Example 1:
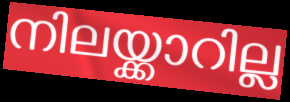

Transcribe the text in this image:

നിലയ്ക്കാറില്ല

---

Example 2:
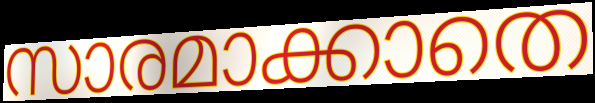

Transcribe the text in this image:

സാരമാക്കാതെ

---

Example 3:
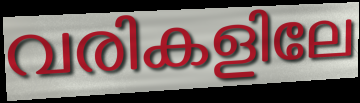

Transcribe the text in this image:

വരികളിലേ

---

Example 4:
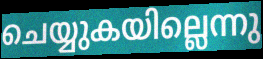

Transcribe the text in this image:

ചെയ്യുകയില്ലെന്നു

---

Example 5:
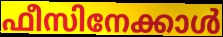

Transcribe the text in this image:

ഫീസിനേക്കാൾ